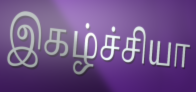
இகழ்ச்சியா